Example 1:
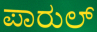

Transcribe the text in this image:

ಪಾರುಲ್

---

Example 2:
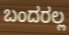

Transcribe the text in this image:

ಬಂದರಲ್ಲ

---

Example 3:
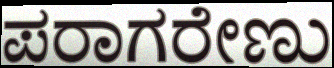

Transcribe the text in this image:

ಪರಾಗರೇಣು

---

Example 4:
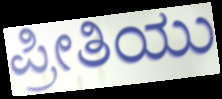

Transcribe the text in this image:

ಪ್ರೀತಿಯು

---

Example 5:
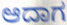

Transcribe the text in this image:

ಆದಾಗ